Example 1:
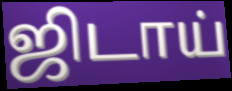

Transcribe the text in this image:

ஜிடாய்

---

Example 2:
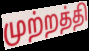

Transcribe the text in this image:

முற்றத்தி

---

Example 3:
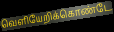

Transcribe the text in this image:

வெளியேறிக்கொண்டே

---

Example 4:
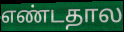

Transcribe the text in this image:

எண்டதால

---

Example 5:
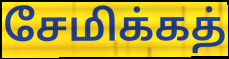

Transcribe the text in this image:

சேமிக்கத்